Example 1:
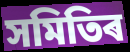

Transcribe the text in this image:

সমিতিৰ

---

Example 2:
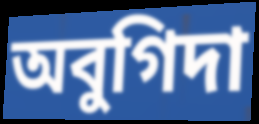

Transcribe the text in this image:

অবুগিদা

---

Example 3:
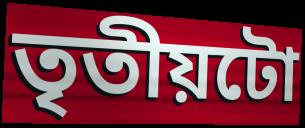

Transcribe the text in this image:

তৃতীয়টো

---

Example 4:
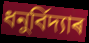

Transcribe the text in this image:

ধনুৰ্বিদ্যাৰ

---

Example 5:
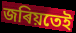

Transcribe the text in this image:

জৰিয়তেই